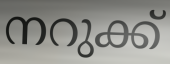
നറുക്ക്